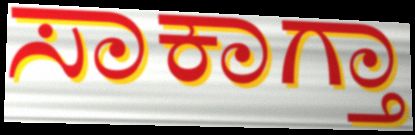
ಸಾಕಾಗ್ತಾ